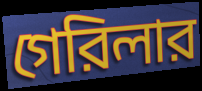
গেরিলার